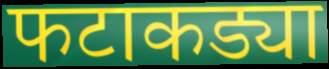
फटाकड्या